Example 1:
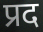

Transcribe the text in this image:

प्रद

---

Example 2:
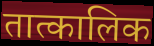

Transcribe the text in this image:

तात्कालिक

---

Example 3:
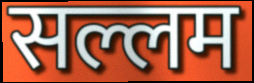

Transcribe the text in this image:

सल्‍लम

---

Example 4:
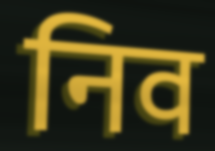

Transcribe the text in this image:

निव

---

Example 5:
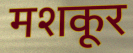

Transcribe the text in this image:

मशकूर